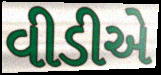
વીડીએ